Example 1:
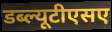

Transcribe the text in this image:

डब्ल्यूटीएसए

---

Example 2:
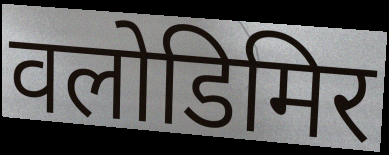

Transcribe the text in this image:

वलोडिमिर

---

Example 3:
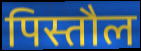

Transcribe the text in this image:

पिस्तौल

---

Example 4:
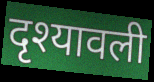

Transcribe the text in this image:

दृश्यावली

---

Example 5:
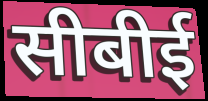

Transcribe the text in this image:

सीबीई